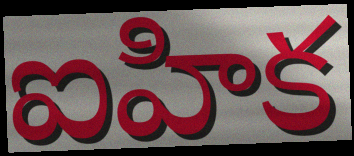
ఐహిక